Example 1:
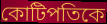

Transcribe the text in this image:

কোটিপতিকে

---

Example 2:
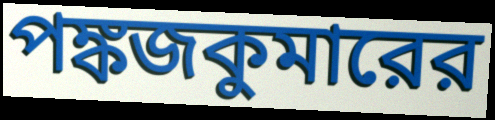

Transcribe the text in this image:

পঙ্কজকুমারের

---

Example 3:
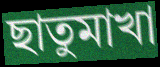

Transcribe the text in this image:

ছাতুমাখা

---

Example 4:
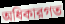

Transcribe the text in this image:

অধিকারগত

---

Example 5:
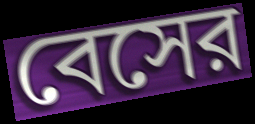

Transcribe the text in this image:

বেসের